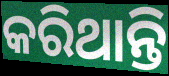
କରିଥାନ୍ତି